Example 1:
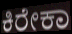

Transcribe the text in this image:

ಕಿರೇಕಾ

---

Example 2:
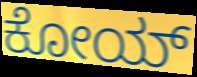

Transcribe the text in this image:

ಕೋಯ್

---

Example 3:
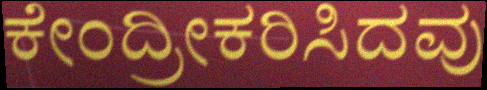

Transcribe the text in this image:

ಕೇಂದ್ರೀಕರಿಸಿದವು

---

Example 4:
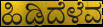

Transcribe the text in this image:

ಹಿಡಿದೆಳೆವ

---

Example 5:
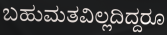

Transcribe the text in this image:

ಬಹುಮತವಿಲ್ಲದಿದ್ದರೂ